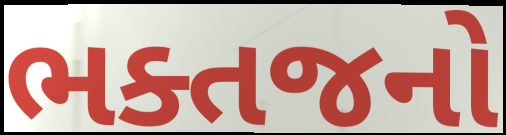
ભક્તજનો